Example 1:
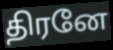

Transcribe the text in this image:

திரனே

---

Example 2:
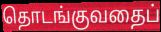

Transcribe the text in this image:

தொடங்குவதைப்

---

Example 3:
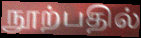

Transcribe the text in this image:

நூற்பதில்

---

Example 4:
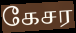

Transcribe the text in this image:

கேசர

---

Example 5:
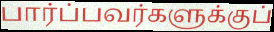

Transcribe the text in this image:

பார்ப்பவர்களுக்குப்